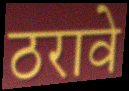
ठरावे